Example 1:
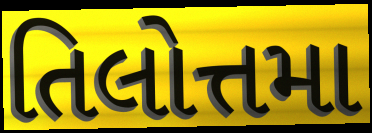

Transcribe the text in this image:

તિલોત્તમા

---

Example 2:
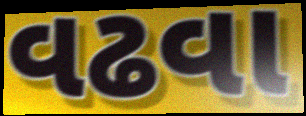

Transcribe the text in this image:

વઢવા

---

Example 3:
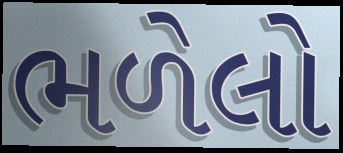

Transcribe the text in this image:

ભળેલો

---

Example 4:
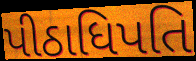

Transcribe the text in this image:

પીઠાધિપતિ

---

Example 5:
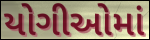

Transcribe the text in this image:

યોગીઓમાં